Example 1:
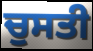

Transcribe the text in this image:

ਚੁਸਤੀ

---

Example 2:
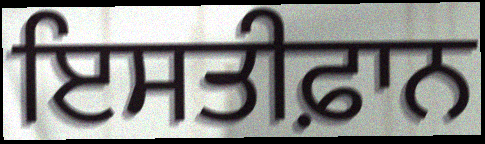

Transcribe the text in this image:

ਇਸਤੀਫ਼ਾਨ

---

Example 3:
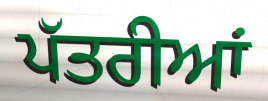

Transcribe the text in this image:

ਪੱਤਰੀਆਂ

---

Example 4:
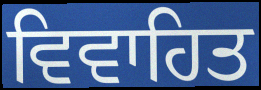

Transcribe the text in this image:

ਵਿਵਾਹਿਤ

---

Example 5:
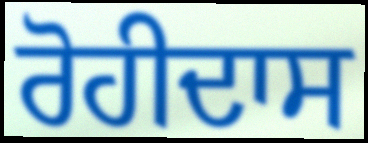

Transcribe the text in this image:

ਰੋਹੀਦਾਸ